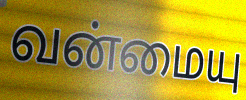
வன்மையு